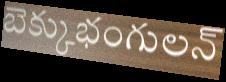
బెక్కుభంగులన్